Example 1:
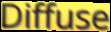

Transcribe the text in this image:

Diffuse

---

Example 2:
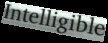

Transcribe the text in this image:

Intelligible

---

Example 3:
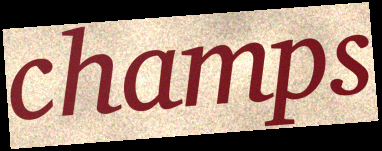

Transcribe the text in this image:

champs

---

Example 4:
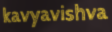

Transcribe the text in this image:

kavyavishva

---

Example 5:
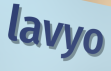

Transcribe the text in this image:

lavyo